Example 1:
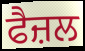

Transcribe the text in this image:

ਫੈਜ਼ਲ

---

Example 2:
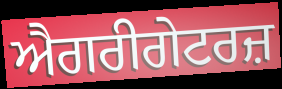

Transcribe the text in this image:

ਐਗਰੀਗੇਟਰਜ਼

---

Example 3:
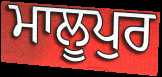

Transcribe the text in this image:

ਮਾਲੂਪੁਰ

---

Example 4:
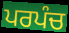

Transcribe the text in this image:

ਪਰਪੰਚ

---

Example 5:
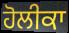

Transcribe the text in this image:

ਹੋਲੀਕਾ